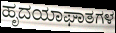
ಹೃದಯಾಘಾತಗಳ